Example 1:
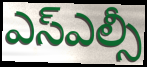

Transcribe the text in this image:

ఎస్ఎల్సీ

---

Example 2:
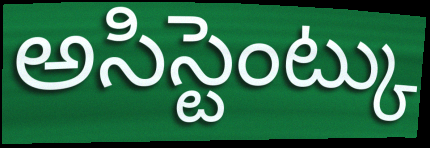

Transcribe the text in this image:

అసిస్టెంట్కు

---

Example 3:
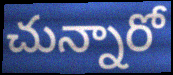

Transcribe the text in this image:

చున్నారో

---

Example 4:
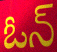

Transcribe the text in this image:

ఓన్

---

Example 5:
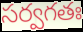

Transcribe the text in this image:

సర్వగతః